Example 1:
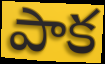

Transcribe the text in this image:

పాక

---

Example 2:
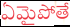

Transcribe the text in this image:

ఏమైపోతే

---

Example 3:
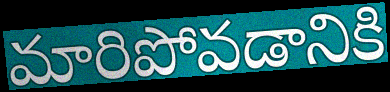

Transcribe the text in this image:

మారిపోవడానికి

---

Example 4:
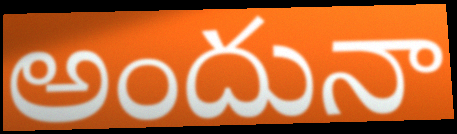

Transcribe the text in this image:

అందునా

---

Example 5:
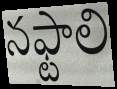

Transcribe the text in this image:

నఫ్టాలి